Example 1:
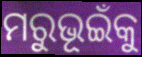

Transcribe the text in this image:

ମରୁଭୂଇଁକୁ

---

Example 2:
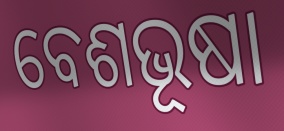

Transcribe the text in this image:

ବେଶଭୂଷା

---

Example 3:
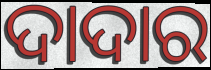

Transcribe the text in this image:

ଦାଦାର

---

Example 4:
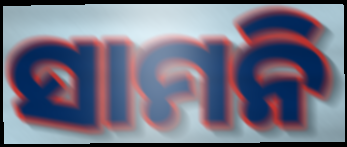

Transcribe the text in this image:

ସାମନି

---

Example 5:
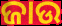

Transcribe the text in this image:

ଜାଉ